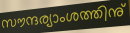
സൗന്ദര്യാംശത്തിനു്